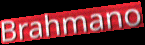
Brahmano